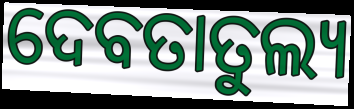
ଦେବତାତୁଲ୍ୟ